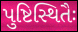
પુષ્ટિસ્થિતૈઃ